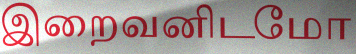
இறைவனிடமோ